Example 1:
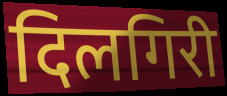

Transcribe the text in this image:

दिलगिरी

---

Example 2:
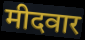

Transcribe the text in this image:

मीदवार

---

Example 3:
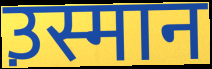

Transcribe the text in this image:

उ़स्मान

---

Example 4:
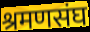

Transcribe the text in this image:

श्रमणसंघ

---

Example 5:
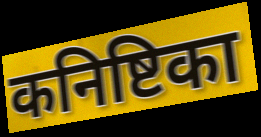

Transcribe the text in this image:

कनिष्टिका